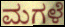
ಮಗಳೆ